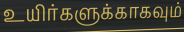
உயிர்களுக்காகவும்